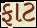
ફાટ